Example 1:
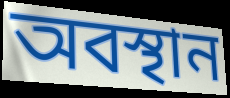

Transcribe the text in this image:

অবস্থান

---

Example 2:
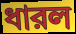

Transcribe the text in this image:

ধারল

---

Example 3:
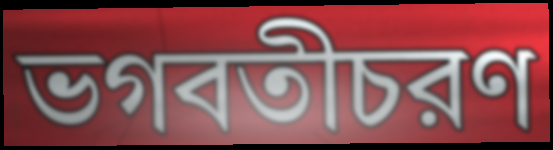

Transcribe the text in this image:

ভগবতীচরণ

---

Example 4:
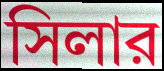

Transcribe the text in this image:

সিলার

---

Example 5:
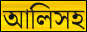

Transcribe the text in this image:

আলিসহ